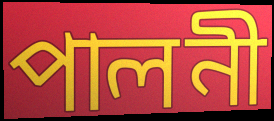
পালনী